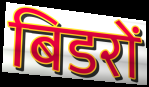
बिडरों